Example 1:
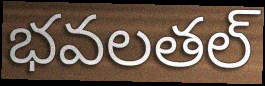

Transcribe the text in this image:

భవలతల్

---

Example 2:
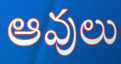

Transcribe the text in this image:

ఆవులు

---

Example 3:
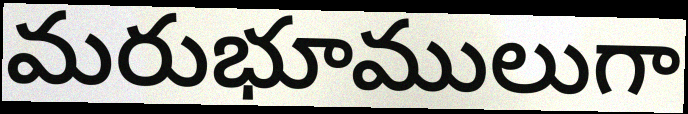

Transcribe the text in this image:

మరుభూములుగా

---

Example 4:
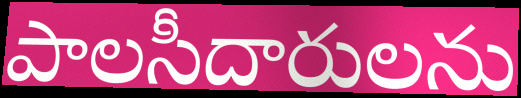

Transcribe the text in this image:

పాలసీదారులను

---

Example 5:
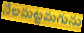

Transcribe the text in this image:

నేలమట్టమగును